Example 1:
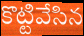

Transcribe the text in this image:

కొట్టివేసిన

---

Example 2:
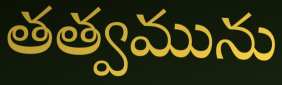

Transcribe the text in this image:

తత్వమును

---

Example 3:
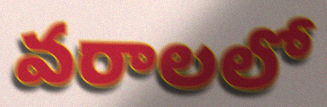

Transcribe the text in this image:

వరాలలో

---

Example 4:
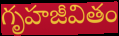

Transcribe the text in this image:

గృహజీవితం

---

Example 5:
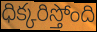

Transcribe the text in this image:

ధిక్కరిస్తోంది